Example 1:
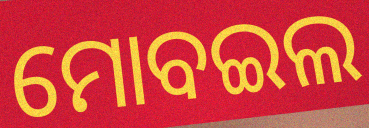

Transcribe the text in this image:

ମୋବଇଲ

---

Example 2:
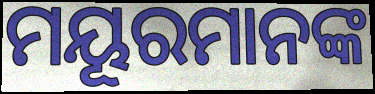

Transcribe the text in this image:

ମୟୂରମାନଙ୍କ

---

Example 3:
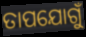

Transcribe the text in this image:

ତାପଯୋଗୁଁ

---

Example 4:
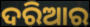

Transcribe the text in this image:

ଦରିଆର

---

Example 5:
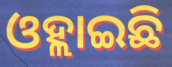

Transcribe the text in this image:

ଓହ୍ଲାଇଛି